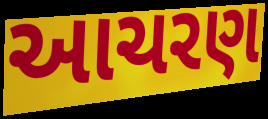
આચરણ